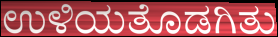
ಉಳಿಯತೊಡಗಿತು